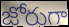
జోరుగా